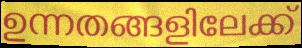
ഉന്നതങ്ങളിലേക്ക്